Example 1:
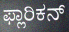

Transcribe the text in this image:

ಫ್ಲಾರಿಕನ್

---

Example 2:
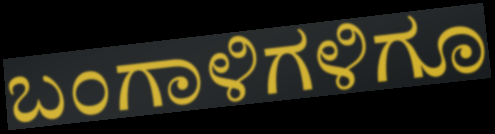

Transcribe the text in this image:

ಬಂಗಾಳಿಗಳಿಗೂ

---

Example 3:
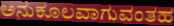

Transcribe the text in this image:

ಅನುಕೂಲವಾಗುವಂತಹ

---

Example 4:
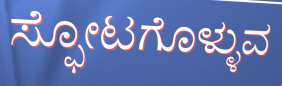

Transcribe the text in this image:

ಸ್ಫೋಟಗೊಳ್ಳುವ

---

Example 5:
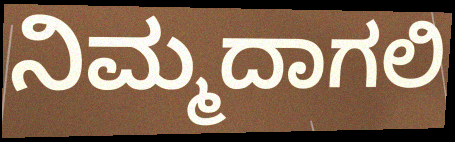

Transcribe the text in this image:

ನಿಮ್ಮದಾಗಲಿ